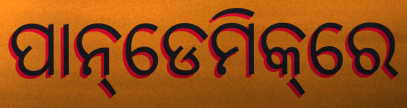
ପାନ୍‌ଡେମିକ୍‌ରେ